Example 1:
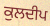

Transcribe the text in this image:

ਕੁਲਦੀਪ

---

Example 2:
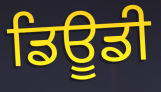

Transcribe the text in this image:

ਡਿਊਡੀ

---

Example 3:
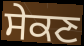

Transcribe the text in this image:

ਸੇਕਣ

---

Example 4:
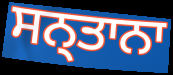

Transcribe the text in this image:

ਸਨ੍ਤਾਨਾ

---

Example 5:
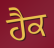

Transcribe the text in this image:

ਹੈਕ